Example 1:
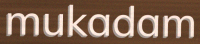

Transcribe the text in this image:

mukadam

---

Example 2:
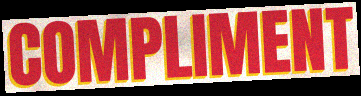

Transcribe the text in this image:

COMPLIMENT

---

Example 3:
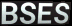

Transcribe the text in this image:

BSES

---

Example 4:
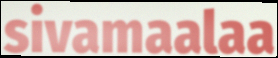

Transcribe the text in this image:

sivamaalaa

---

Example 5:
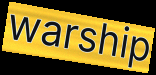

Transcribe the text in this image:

warship